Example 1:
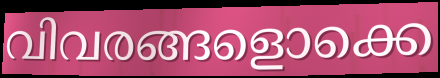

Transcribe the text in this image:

വിവരങ്ങളൊക്കെ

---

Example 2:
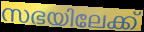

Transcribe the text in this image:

സഭയിലേക്ക്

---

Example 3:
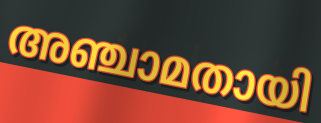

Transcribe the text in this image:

അഞ്ചാമതായി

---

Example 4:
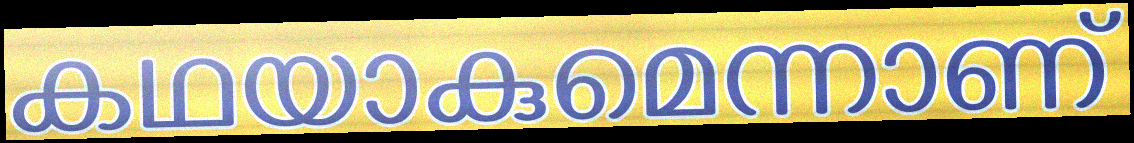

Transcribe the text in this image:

കഥയാകുമെന്നാണ്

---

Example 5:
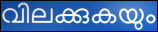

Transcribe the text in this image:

വിലക്കുകയും